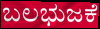
ಬಲಭುಜಕೆ